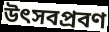
উৎসবপ্রবণ